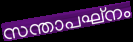
സന്താപഘ്നം